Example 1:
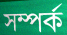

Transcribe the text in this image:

সম্পৰ্ক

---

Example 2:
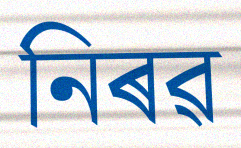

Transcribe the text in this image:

নিৰৱ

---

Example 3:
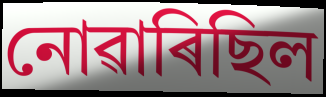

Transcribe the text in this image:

নোৱাৰিছিল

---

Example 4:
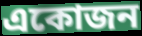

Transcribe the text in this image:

একোজন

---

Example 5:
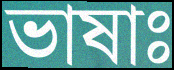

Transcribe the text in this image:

ভাষাঃ